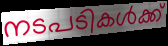
നടപടികൾക്ക്